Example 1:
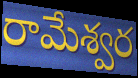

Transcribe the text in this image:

రామేశ్వర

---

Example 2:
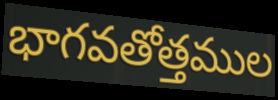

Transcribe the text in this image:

భాగవతోత్తముల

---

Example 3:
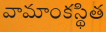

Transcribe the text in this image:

వామాంకస్థిత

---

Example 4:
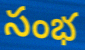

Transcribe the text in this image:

సంభ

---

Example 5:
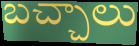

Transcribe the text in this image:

బచ్చాలు